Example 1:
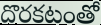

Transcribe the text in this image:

దొరకటంతో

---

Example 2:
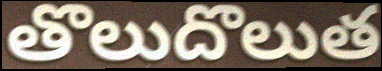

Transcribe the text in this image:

తొలుదొలుత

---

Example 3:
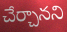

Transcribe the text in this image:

చేర్చానని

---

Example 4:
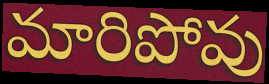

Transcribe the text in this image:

మారిపోవు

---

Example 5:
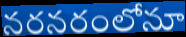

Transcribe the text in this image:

నరనరంలోనూ